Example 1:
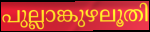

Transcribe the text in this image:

പുല്ലാങ്കുഴലൂതി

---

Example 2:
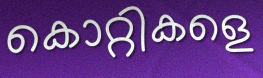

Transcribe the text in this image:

കൊറ്റികളെ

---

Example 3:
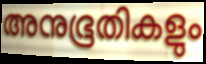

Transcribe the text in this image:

അനുഭൂതികളും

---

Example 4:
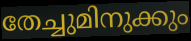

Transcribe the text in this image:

തേച്ചുമിനുക്കും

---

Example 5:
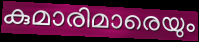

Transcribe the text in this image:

കുമാരിമാരെയും